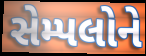
સેમ્પલોને